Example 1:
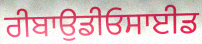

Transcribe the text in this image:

ਰੀਬਾਉਡੀਓਸਾਈਡ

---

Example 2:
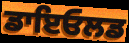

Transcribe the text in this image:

ਡਾਇਓਲਡ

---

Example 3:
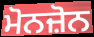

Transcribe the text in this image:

ਮੋਨਜ਼ੋਨ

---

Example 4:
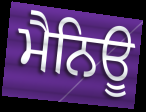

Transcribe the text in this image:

ਮੈਨਿਊ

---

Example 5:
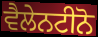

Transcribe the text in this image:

ਵੈਲੇਨਟੀਨੋ